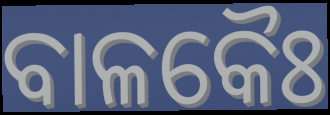
ବାଳକୈଃ